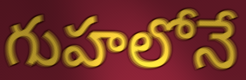
గుహలోనే